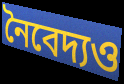
নৈবেদ্যও